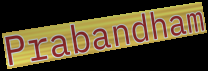
Prabandham